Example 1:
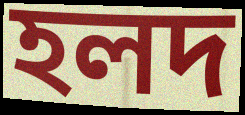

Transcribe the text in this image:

হলদ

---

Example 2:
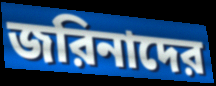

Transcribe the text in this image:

জরিনাদের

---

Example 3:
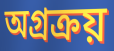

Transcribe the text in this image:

অগ্রক্রয়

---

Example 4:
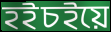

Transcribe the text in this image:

হইচইয়ে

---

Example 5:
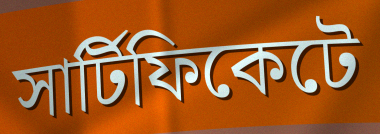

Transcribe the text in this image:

সার্টিফিকেটে